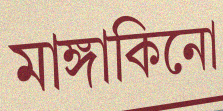
মাঙ্গাকিনো